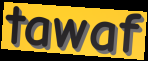
tawaf